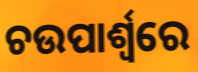
ଚଉପାର୍ଶ୍ୱରେ